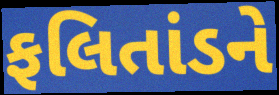
ફલિતાંડને